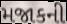
મજાકની